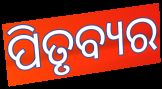
ପିତୃବ୍ୟର